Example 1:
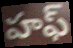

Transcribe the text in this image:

హఫ్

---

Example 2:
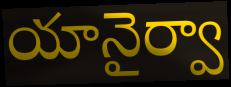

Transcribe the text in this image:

యానైర్వా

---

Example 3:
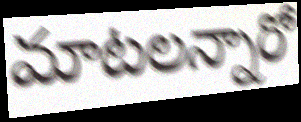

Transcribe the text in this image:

మాటలన్నారో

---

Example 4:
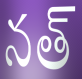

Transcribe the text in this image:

నత్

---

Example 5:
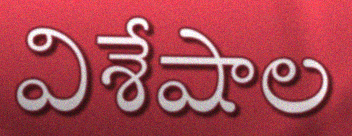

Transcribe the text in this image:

విశేషాల